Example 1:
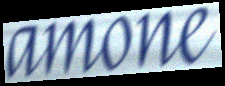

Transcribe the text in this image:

amone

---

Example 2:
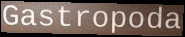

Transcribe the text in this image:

Gastropoda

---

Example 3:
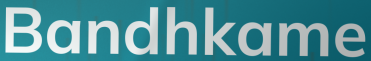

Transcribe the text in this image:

Bandhkame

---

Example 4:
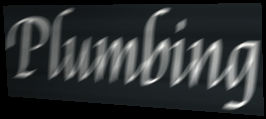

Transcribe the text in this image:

Plumbing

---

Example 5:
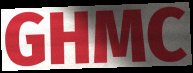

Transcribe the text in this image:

GHMC